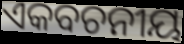
ଏକବଚନୀୟ